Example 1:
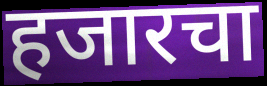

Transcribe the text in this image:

हजारचा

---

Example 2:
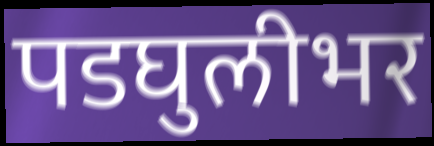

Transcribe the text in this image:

पडघुलीभर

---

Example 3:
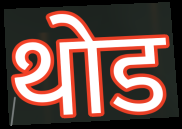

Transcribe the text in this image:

थोड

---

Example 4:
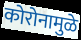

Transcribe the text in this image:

कोरोनामुळे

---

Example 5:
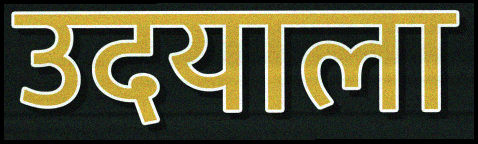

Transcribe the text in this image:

उदयाला